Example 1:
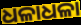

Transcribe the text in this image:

ଧଳାଧଳା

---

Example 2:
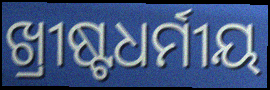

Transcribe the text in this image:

ଖ୍ରୀଷ୍ଟଧର୍ମୀୟ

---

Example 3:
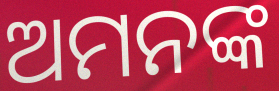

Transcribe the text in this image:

ଅମନଙ୍କ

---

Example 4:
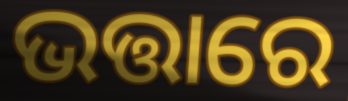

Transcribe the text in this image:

ଭତ୍ତାରେ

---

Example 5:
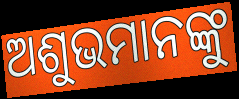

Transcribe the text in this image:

ଅଶୁଭମାନଙ୍କୁ